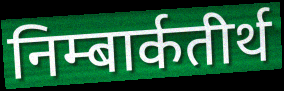
निम्बार्कतीर्थ